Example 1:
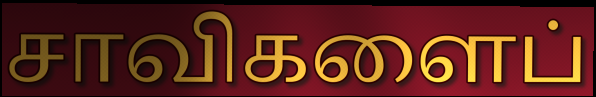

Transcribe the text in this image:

சாவிகளைப்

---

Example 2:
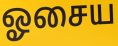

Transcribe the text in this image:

ஓசைய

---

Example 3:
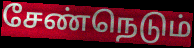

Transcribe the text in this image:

சேண்நெடும்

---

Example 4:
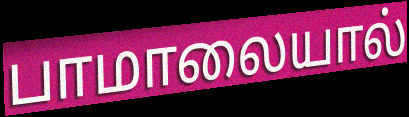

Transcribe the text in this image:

பாமாலையால்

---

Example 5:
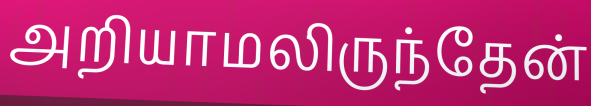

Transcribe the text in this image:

அறியாமலிருந்தேன்